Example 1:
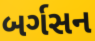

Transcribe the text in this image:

બર્ગસન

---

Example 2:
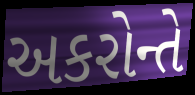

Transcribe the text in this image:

અકરોન્તે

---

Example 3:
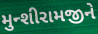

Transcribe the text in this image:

મુન્શીરામજીને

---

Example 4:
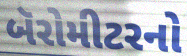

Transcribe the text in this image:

બૅરોમીટરનો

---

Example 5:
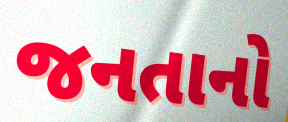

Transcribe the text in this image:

જનતાનો